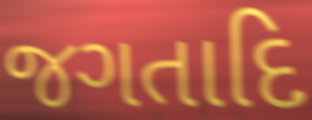
જગતાદિ